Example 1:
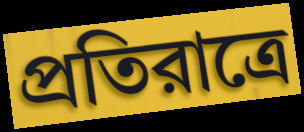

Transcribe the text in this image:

প্রতিরাত্রে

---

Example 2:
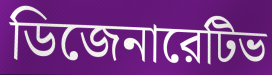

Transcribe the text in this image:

ডিজেনারেটিভ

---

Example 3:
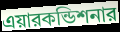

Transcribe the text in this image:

এয়ারকন্ডিশনার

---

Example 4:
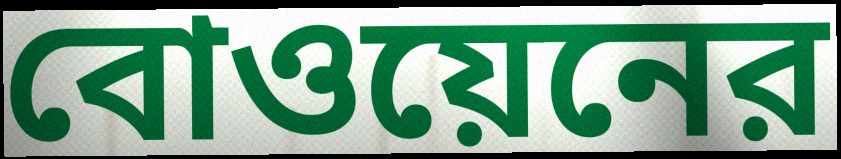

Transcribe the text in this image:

বোওয়েনের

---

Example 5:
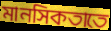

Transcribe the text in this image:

মানসিকতাতে